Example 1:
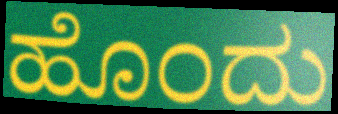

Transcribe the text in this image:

ಹೊಂದು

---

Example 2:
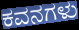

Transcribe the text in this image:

ಕವನಗಳು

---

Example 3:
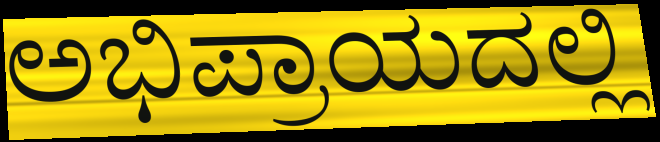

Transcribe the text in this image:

ಅಭಿಪ್ರಾಯದಲ್ಲಿ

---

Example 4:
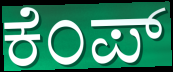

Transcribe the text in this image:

ಕೆಂಪ್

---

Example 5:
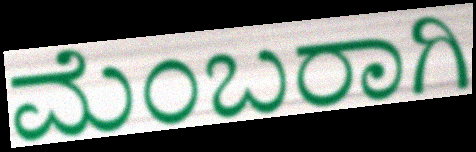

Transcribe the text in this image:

ಮೆಂಬರಾಗಿ